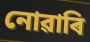
নোৱাৰি